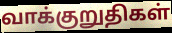
வாக்குறுதிகள்